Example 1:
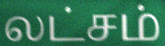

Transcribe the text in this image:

லட்சம்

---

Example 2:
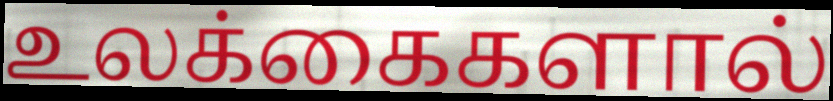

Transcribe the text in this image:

உலக்கைகளால்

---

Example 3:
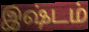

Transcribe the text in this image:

இஷ்டம்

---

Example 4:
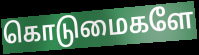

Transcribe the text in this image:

கொடுமைகளே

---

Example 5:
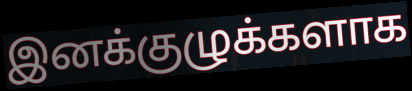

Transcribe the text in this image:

இனக்குழுக்களாக